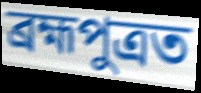
ব্ৰহ্মপুত্ৰত